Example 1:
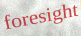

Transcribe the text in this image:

foresight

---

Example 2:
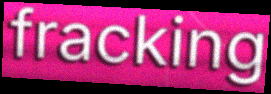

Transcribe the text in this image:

fracking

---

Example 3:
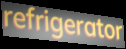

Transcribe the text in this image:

refrigerator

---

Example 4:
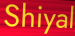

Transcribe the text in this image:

Shiyal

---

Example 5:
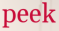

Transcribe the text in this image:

peek